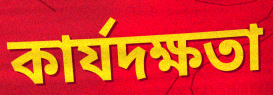
কাৰ্যদক্ষতা